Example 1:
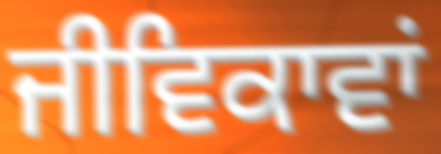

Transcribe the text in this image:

ਜੀਵਿਕਾਵਾਂ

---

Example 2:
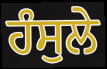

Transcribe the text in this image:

ਹੰਸੁਲੇ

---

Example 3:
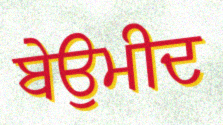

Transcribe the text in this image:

ਬੇਉਮੀਦ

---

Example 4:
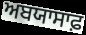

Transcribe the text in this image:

ਅਬਯਾਸਾਫ਼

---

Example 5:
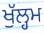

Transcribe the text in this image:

ਖੁੱਲ੍ਹਮ